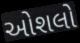
ઓશલો